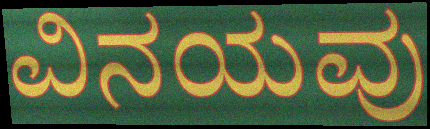
ವಿನಯವು